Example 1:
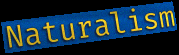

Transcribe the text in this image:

Naturalism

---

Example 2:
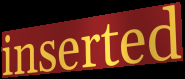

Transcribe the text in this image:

inserted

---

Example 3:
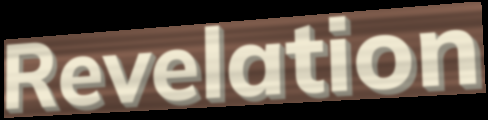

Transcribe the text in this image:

Revelation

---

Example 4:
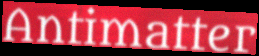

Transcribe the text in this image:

Antimatter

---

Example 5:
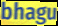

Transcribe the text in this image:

bhagu